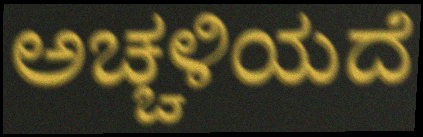
ಅಚ್ಚಳಿಯದೆ